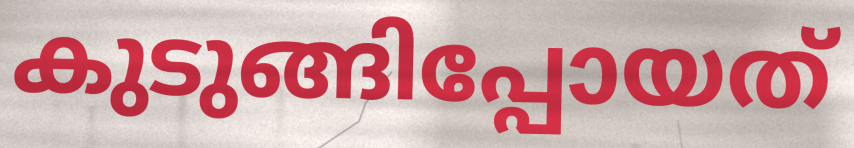
കുടുങ്ങിപ്പോയത്